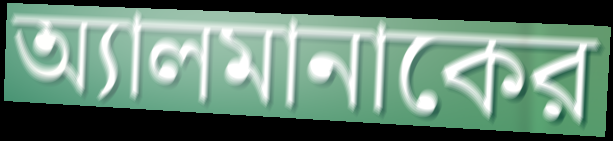
অ্যালমানাকের